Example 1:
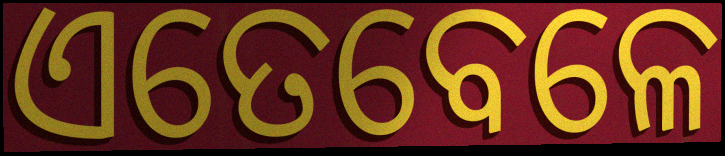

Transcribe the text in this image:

ଏତେବେଳେ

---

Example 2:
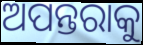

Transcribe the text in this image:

ଅପନ୍ତରାକୁ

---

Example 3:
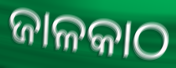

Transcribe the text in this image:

ଜାଳକାଠ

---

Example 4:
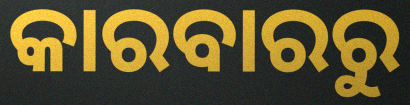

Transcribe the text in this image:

କାରବାରରୁ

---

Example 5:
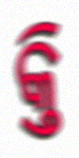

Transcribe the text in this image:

କ୍ତି